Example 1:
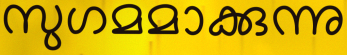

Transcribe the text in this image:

സുഗമമാക്കുന്നു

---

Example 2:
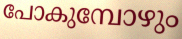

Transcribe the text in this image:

പോകുമ്പോഴും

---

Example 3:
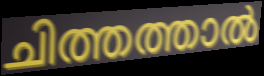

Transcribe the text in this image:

ചിത്തത്താൽ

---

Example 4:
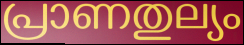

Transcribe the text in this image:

പ്രാണതുല്യം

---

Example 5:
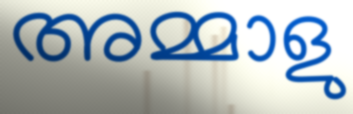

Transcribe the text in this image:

അമ്മാളു